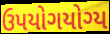
ઉપયોગયોગ્ય